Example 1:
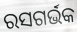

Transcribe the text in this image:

ରସଗର୍ଭକ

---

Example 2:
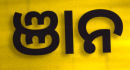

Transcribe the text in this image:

ଞାନ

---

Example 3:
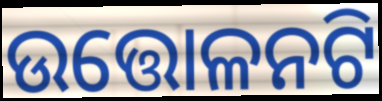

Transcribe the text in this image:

ଉତ୍ତୋଳନଟି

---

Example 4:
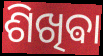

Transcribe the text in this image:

ଶିଖିଵା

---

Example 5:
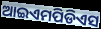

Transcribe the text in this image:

ଆଇଏମପିଡିଏସ